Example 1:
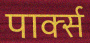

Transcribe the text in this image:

पार्क्‍स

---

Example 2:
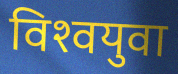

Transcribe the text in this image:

विश्वयुवा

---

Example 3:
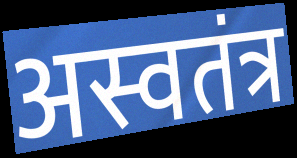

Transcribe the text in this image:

अस्वतंत्र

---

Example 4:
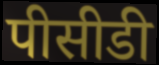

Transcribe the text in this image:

पीसीडी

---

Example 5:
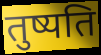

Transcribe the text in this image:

तुष्यति